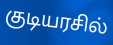
குடியரசில்